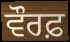
ਵੌਰਫ਼